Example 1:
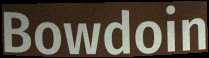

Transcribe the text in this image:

Bowdoin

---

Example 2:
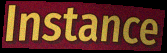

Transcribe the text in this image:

Instance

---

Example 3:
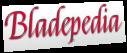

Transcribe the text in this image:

Bladepedia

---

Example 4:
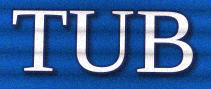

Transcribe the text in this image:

TUB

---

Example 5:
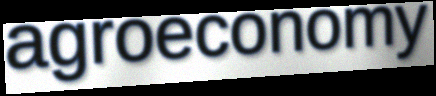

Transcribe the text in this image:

agroeconomy